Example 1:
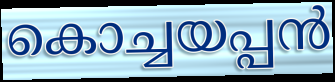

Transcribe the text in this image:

കൊച്ചയപ്പൻ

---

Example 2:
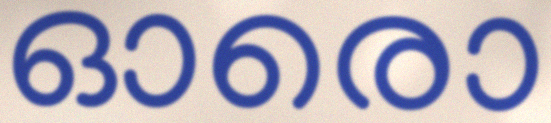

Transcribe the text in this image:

ഓരൊ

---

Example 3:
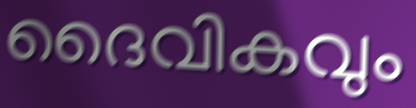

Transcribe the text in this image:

ദൈവികവും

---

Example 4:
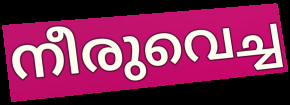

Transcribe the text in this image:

നീരുവെച്ച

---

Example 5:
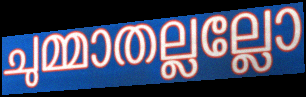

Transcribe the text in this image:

ചുമ്മാതല്ലല്ലോ